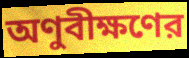
অণুবীক্ষণের